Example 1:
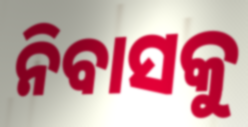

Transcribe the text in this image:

ନିବାସକୁ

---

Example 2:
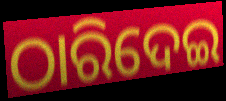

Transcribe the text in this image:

ଠାରିଦେଇ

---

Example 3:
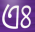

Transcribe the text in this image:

ଏଃ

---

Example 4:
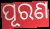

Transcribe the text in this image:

ପୂରଣ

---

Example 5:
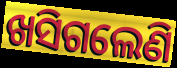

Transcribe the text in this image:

ଖସିଗଲେଣି